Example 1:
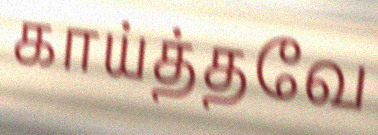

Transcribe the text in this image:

காய்த்தவே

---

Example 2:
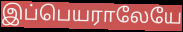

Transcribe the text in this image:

இப்பெயராலேயே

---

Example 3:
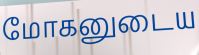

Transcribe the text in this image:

மோகனுடைய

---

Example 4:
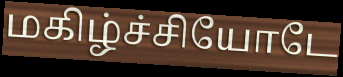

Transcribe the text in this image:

மகிழ்ச்சியோடே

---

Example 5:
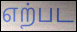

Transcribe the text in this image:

எற்பட